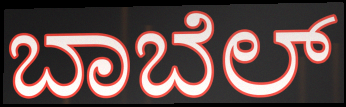
ಬಾಬೆಲ್